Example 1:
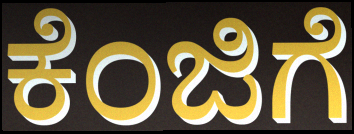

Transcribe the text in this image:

ಕೆಂಜಿಗೆ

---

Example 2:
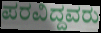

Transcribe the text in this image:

ಪರವಿದ್ದವರು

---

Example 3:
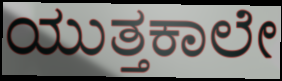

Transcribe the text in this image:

ಯುತ್ತಕಾಲೇ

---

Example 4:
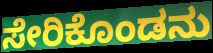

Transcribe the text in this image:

ಸೇರಿಕೊಂಡನು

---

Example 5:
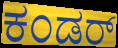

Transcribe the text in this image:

ಕಂಡರ್